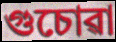
গুচোৱা